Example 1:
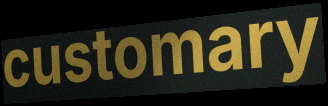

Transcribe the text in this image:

customary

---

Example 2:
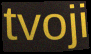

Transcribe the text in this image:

tvoji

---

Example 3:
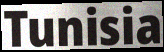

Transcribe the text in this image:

Tunisia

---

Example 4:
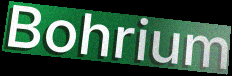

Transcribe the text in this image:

Bohrium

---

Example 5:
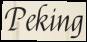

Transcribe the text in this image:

Peking